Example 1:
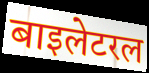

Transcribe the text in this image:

बाइलेटरल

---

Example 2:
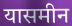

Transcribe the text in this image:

यासमीन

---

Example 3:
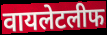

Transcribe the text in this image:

वायलेटलीफ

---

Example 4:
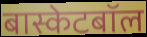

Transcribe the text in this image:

बास्केटबॉल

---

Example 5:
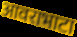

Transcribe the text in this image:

आवराभाटा